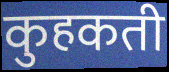
कुहकती